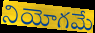
నియోగమే